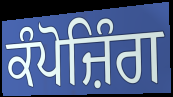
ਕੰਪੋਜ਼ਿੰਗ